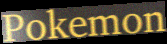
Pokemon